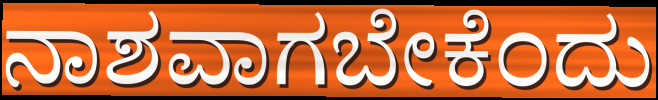
ನಾಶವಾಗಬೇಕೆಂದು